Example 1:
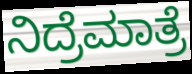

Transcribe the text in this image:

ನಿದ್ರೆಮಾತ್ರೆ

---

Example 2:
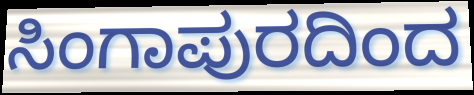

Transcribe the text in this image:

ಸಿಂಗಾಪುರದಿಂದ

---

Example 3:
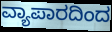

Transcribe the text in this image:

ವ್ಯಾಪಾರದಿಂದ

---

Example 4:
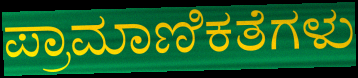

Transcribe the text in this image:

ಪ್ರಾಮಾಣಿಕತೆಗಳು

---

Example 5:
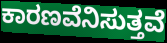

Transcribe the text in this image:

ಕಾರಣವೆನಿಸುತ್ತವೆ